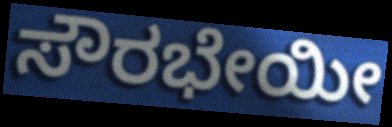
ಸೌರಭೇಯೀ